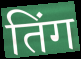
तिंग